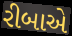
રીબાએ